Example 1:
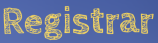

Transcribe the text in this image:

Registrar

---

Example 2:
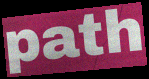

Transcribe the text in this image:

path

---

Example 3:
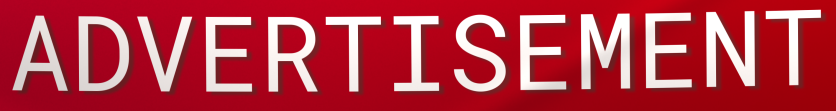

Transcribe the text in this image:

ADVERTISEMENT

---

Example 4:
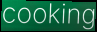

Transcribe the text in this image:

cooking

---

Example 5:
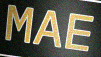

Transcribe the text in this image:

MAE